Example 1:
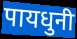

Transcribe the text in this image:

पायधुनी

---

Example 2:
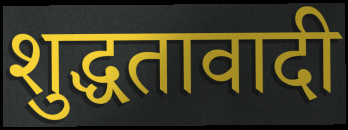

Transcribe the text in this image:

शुद्धतावादी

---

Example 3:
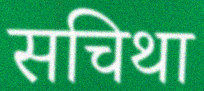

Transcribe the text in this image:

सचिथा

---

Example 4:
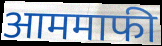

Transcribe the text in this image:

आममाफी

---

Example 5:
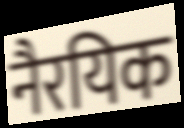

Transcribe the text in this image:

नैरयिक